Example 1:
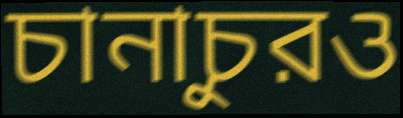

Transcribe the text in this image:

চানাচুরও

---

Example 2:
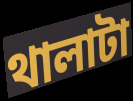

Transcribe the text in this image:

থালাটা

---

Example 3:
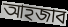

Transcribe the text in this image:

আহজাব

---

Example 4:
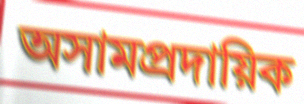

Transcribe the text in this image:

অসামপ্রদায়িক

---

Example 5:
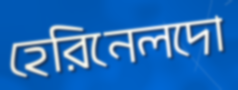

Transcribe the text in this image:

হেরিনেলদো